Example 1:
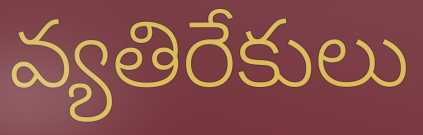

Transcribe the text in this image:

వ్యతిరేకులు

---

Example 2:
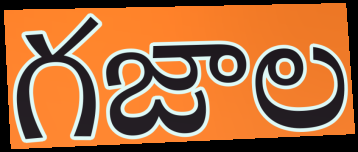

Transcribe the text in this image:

గజాల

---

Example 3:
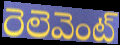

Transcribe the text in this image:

రెలెవెంట్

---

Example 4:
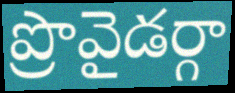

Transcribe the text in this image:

ప్రొవైడర్గా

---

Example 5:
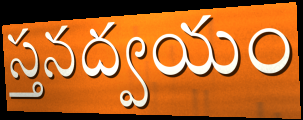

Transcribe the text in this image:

స్తనద్వయం